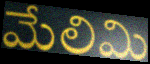
మేలిమి